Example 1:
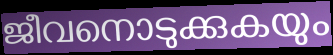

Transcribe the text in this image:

ജീവനൊടുക്കുകയും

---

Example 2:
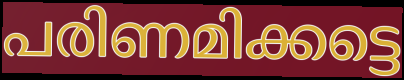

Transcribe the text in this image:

പരിണമിക്കട്ടെ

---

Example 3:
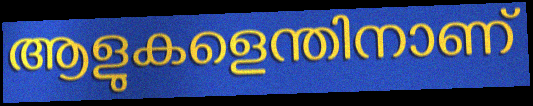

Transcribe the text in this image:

ആളുകളെന്തിനാണ്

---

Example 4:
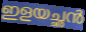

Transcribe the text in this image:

ഇളയച്ഛൻ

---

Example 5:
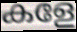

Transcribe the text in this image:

കളേ